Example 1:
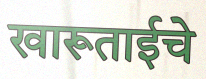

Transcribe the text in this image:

खारूताईचे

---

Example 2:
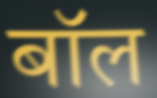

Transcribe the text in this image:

बॉल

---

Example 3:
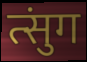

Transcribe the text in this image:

त्सुंग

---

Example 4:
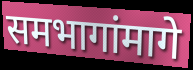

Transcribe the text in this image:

समभागांमागे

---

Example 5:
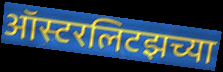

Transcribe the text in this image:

ऑस्टरलिटझच्या